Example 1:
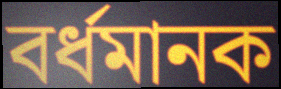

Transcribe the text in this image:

বর্ধমানক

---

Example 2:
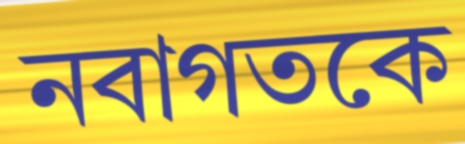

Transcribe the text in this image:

নবাগতকে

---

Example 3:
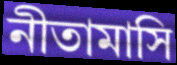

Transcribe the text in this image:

নীতামাসি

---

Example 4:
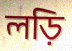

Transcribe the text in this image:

লড়ি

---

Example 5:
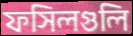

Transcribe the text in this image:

ফসিলগুলি